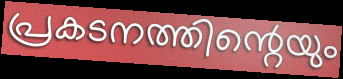
പ്രകടനത്തിന്റെയും